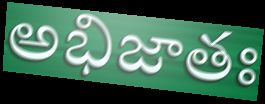
అభిజాతః